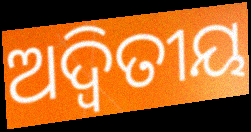
ଅଦ୍ବିତୀୟ